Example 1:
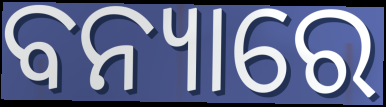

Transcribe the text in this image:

ବନ୍ୟାରେ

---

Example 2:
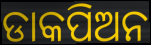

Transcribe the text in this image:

ଡାକପିଅନ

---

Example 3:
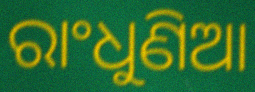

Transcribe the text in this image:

ରାଂଧୁଣିଆ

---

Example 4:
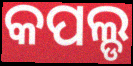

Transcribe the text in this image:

କପଲ୍ଡ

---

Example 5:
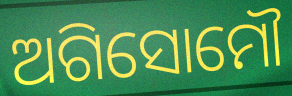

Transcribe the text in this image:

ଅଗିସୋମୌ